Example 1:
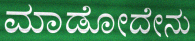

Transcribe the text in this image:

ಮಾಡೋದೇನು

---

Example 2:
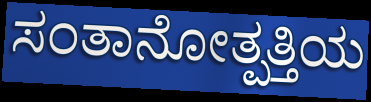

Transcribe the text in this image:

ಸಂತಾನೋತ್ಪತ್ತಿಯ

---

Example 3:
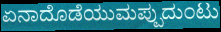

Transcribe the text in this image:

ಏನಾದೊಡೆಯುಮಪ್ಪುದುಂಟು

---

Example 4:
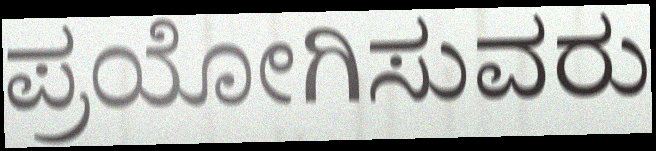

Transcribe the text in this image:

ಪ್ರಯೋಗಿಸುವರು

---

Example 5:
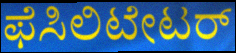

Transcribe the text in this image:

ಫೆಸಿಲಿಟೇಟರ್